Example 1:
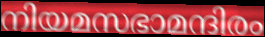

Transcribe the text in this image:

നിയമസഭാമന്ദിരം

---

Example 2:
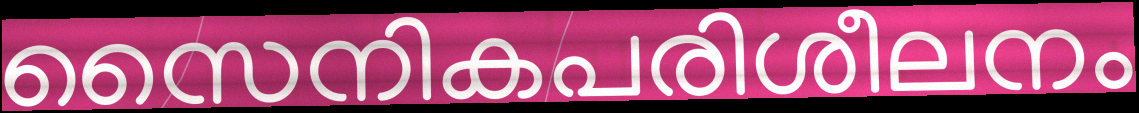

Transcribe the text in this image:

സൈനികപരിശീലനം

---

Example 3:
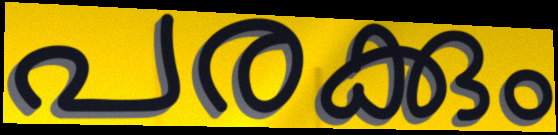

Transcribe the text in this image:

പരക്കും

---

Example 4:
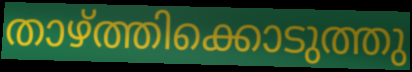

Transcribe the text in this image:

താഴ്ത്തിക്കൊടുത്തു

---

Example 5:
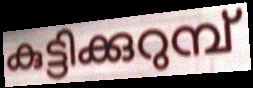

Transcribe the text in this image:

കുട്ടിക്കുറുമ്പ്